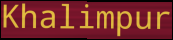
Khalimpur